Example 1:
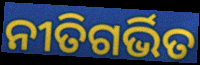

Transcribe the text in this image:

ନୀତିଗର୍ଭିତ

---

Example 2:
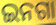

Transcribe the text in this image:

ଇନଗା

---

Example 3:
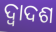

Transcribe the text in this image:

ଦ୍ୱାଦଶ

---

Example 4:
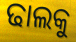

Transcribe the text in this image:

ଢାଲକୁ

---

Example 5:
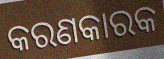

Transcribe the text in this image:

କରଣକାରକ